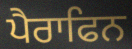
ਪੈਰਾਫਿਨ